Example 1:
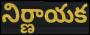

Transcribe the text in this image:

నిర్ణాయక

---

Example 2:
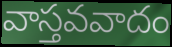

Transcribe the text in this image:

వాస్తవవాదం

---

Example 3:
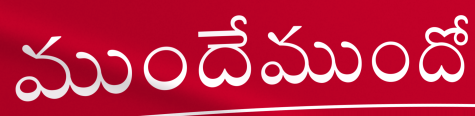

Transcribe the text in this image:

ముందేముందో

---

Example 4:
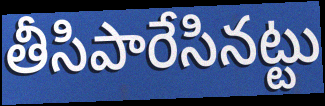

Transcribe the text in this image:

తీసిపారేసినట్టు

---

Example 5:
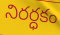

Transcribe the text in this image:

నిరర్ధకం